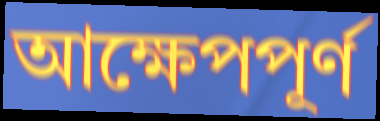
আক্ষেপপূর্ণ